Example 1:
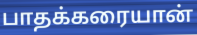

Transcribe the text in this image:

பாதக்கரையான்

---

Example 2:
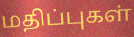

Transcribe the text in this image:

மதிப்புகள்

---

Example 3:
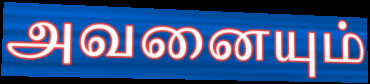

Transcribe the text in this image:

அவனையும்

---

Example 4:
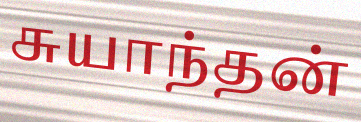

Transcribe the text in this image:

சுயாந்தன்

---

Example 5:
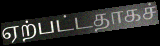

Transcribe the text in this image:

ஏற்பட்டதாகச்